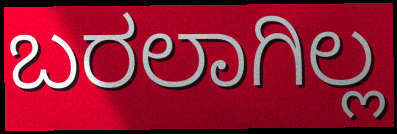
ಬರಲಾಗಿಲ್ಲ